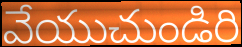
వేయుచుండిరి